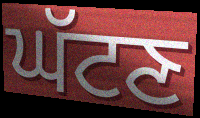
ਘੱਟਣ